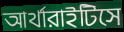
আর্থারাইটিসে